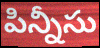
పిన్నీసు